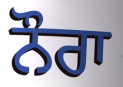
ਨੌਰਾ